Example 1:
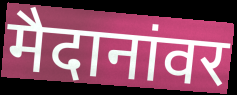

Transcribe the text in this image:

मैदानांवर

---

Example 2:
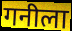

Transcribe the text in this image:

गनीला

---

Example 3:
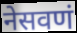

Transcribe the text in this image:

नेसवणं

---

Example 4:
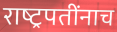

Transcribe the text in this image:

राष्ट्रपतींनाच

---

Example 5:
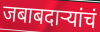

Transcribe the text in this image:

जबाबदार्‍यांचं